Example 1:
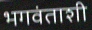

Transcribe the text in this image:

भगवंताशी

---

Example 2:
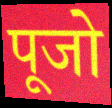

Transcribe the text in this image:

पूजो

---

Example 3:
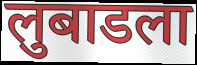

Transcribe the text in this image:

लुबाडला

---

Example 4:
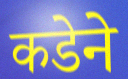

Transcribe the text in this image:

कडेने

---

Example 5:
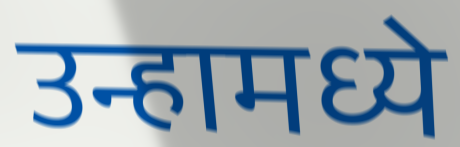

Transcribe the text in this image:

उन्हामध्ये